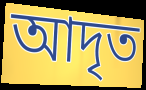
আদৃত